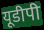
यूडीपी